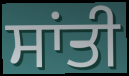
ਸਾਂਤੀ